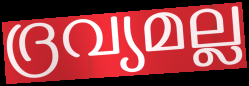
ദ്രവ്യമല്ല